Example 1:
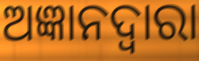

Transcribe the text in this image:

ଅଜ୍ଞାନଦ୍ଵାରା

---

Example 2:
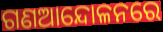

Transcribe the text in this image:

ଗଣଆନ୍ଦୋଳନରେ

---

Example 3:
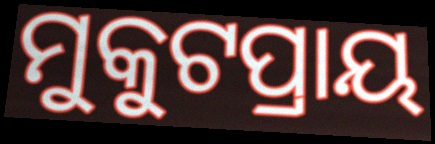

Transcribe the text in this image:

ମୁକୁଟପ୍ରାୟ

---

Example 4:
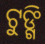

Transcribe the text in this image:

ଟୁଙ୍ଗି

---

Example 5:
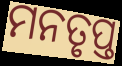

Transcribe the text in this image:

ମନତୃପ୍ତ